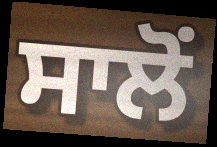
ਸਾਲੋਂ